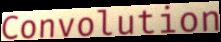
Convolution